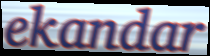
ekandar